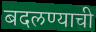
बदलण्याची